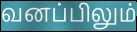
வனப்பிலும்